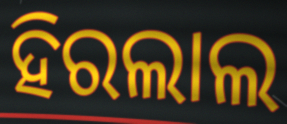
ହିରଲାଲ